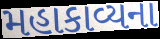
મહાકાવ્યના